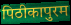
पिठीकापुरम